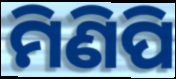
ମିଣିପି